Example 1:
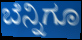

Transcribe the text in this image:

ಬೆನ್ನಿಗೂ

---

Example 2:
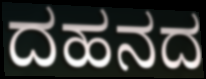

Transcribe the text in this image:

ದಹನದ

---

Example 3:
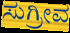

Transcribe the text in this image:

ಸುಗ್ರೀವ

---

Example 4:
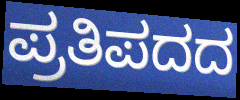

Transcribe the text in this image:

ಪ್ರತಿಪದದ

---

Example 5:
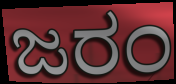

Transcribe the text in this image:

ಜರಂ